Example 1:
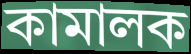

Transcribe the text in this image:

কামালক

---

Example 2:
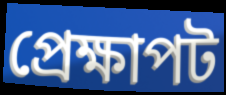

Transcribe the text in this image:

প্ৰেক্ষাপট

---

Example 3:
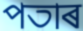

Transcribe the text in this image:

পতাৰ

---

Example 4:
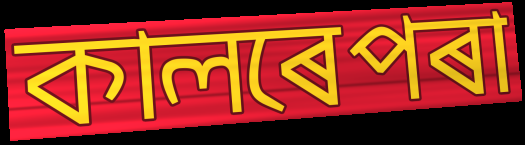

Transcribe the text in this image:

কালৰেপৰা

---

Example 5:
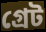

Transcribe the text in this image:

গ্ৰেট